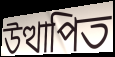
উত্থাপিত